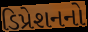
ડિપ્રેશનનો